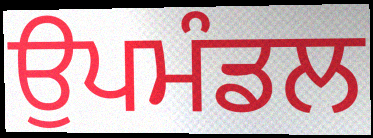
ਉਪਮੰਡਲ